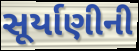
સૂર્યાણીની